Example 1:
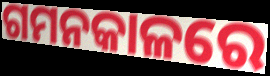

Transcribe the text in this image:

ଗମନକାଳରେ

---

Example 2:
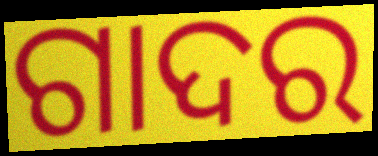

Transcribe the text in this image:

ଗାଦର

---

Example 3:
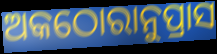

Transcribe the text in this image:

ଅକଠୋରାନୁପ୍ରାସ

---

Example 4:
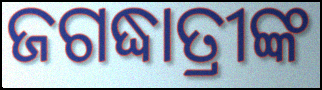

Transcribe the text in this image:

ଜଗଦ୍ଧାତ୍ରୀଙ୍କ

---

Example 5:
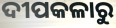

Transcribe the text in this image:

ଦୀପକଳାରୁ